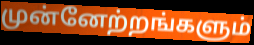
முன்னேற்றங்களும்